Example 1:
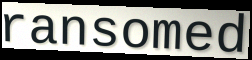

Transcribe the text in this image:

ransomed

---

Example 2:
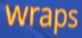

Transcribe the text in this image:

wraps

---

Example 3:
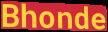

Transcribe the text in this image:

Bhonde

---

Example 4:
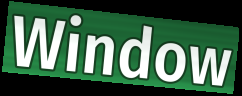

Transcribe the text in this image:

Window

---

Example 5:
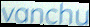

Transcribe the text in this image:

vanchu